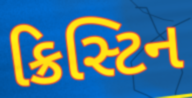
ક્રિસ્ટિન